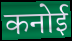
कनोई